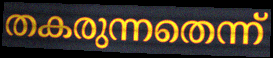
തകരുന്നതെന്ന്